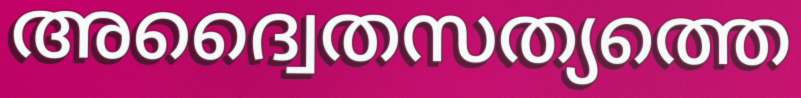
അദ്വൈതസത്യത്തെ